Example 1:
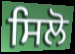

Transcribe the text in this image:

ਸਿਲੋ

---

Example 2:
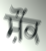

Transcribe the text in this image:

ਸ਼ੌੰਕ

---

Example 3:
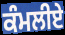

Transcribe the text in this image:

ਕੰਮਲੀਏ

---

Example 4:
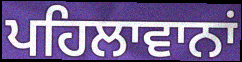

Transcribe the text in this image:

ਪਹਿਲਾਵਾਨਾਂ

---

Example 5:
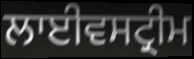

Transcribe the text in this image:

ਲਾਈਵਸਟ੍ਰੀਮ